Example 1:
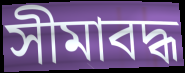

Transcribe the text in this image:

সীমাবদ্ধ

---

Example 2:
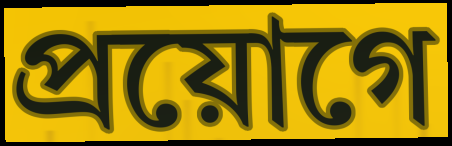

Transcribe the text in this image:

প্ৰয়োগে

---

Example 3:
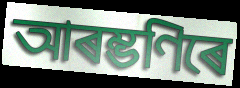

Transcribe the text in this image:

আৰম্ভণিৰে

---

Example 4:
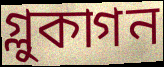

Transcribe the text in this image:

গ্লুকাগন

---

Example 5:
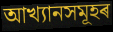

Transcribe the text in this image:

আখ্যানসমূহৰ